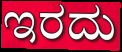
ಇರದು